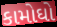
કામોઘો